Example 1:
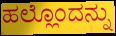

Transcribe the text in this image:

ಹಲ್ಲೊಂದನ್ನು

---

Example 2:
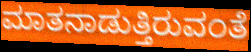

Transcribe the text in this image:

ಮಾತನಾಡುತ್ತಿರುವಂತೆ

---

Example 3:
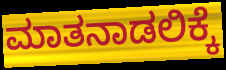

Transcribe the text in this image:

ಮಾತನಾಡಲಿಕ್ಕೆ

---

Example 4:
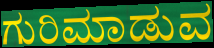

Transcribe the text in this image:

ಗುರಿಮಾಡುವ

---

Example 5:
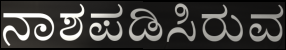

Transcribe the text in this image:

ನಾಶಪಡಿಸಿರುವ